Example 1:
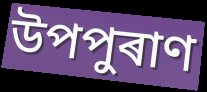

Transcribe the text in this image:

উপপুৰাণ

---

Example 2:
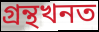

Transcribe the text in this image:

গ্ৰন্থখনত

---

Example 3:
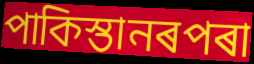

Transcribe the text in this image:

পাকিস্তানৰপৰা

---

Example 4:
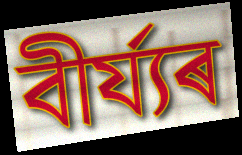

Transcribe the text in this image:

বীৰ্য্যৰ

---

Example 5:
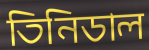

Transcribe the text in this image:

তিনিডাল